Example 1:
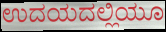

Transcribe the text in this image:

ಉದಯದಲ್ಲಿಯೂ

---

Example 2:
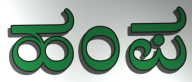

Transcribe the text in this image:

ಹಂಪ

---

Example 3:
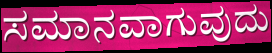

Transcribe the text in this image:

ಸಮಾನವಾಗುವುದು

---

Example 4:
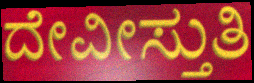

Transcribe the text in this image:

ದೇವೀಸ್ತುತಿ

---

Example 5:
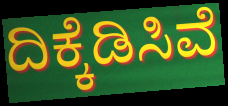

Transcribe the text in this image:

ದಿಕ್ಕೆಡಿಸಿವೆ